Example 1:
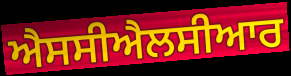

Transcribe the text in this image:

ਐਸਸੀਐਲਸੀਆਰ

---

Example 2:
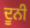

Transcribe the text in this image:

ਦੂਨੀ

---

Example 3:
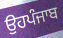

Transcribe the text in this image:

ਉਹਪੰਜਾਬ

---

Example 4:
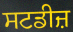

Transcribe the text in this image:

ਸਟਡੀਜ਼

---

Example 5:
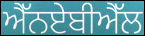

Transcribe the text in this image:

ਐੱਨਏਬੀਐੱਲ